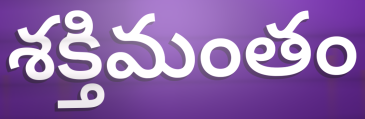
శక్తిమంతం